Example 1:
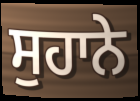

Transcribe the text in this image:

ਸੁਹਾਨੇ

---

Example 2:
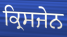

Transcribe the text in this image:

ਕ੍ਰਿਸਜੇਨ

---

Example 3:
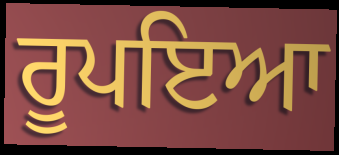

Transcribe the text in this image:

ਰੂਪਇਆ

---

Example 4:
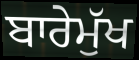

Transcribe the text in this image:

ਬਾਰੇਮੁੱਖ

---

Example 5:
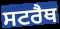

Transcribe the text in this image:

ਸਟਰੈਥ